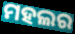
ମହଲର